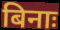
बिनाः